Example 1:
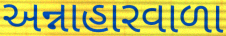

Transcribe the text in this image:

અન્નાહારવાળા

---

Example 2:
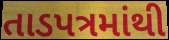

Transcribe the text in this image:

તાડપત્રમાંથી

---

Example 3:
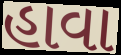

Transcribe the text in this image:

હાવા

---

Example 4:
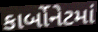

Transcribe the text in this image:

કાર્બોનેટમાં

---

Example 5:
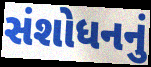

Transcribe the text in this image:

સંશોધનનું